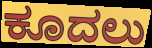
ಕೂದಲು